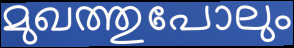
മുഖത്തുപോലും